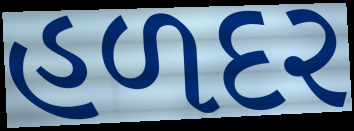
હળદર